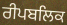
ਰੀਪਬਲਿਕ